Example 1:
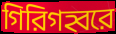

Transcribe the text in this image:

গিরিগহ্বরে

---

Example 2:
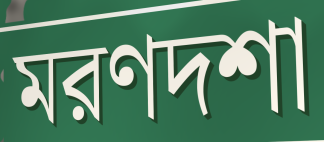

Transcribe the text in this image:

মরণদশা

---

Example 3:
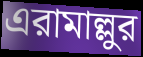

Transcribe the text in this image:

এরামাল্লুর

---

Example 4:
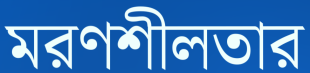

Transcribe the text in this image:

মরণশীলতার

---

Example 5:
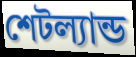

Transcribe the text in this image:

শেটল্যান্ড